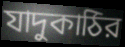
যাদুকাঠির